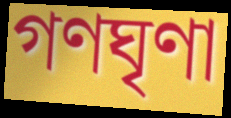
গণঘৃণা